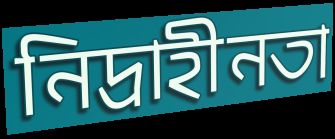
নিদ্রাহীনতা